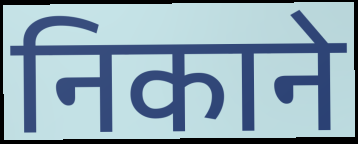
निकाने